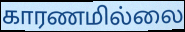
காரணமில்லை